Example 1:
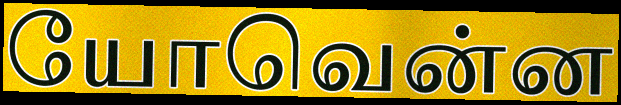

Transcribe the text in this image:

யோவென்ன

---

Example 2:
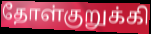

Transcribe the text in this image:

தோள்குறுக்கி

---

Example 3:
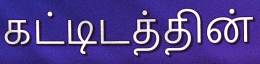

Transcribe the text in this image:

கட்டிடத்தின்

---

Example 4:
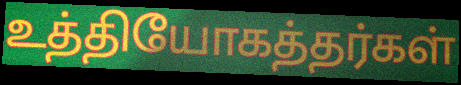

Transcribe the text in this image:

உத்தியோகத்தர்கள்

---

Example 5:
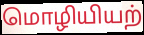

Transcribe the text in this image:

மொழியியற்